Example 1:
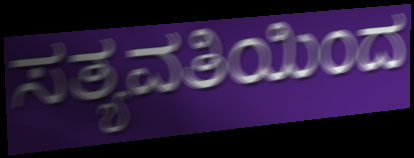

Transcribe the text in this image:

ಸತ್ಯವತಿಯಿಂದ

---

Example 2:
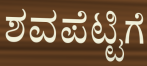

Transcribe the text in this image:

ಶವಪೆಟ್ಟಿಗೆ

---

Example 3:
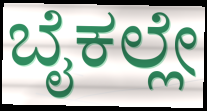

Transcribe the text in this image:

ಬೈಕಲ್ಲೇ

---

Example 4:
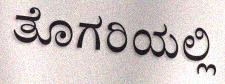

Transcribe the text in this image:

ತೊಗರಿಯಲ್ಲಿ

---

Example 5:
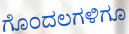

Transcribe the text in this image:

ಗೊಂದಲಗಳಿಗೂ